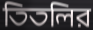
তিতলির